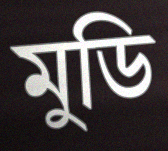
মুডি